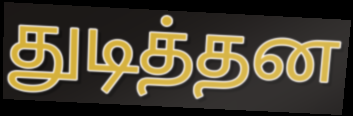
துடித்தன